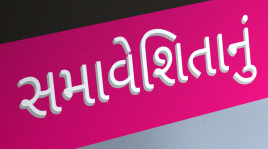
સમાવેશિતાનું